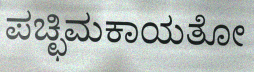
ಪಚ್ಛಿಮಕಾಯತೋ